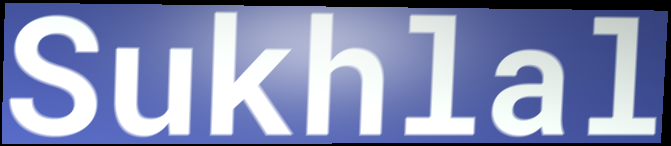
Sukhlal